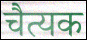
चैत्यक